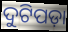
ଦୁଟିପଡ଼ା